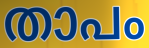
താപം